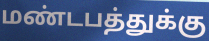
மண்டபத்துக்கு